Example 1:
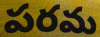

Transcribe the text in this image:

పరమ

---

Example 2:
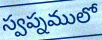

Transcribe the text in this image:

స్వప్నములో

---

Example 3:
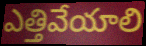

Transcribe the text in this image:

ఎత్తివేయాలి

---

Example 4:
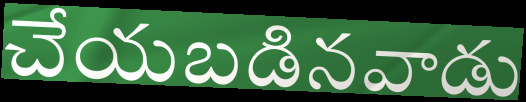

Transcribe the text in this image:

చేయబడినవాడు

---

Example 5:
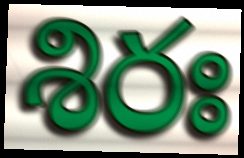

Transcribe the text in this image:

శిరః